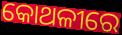
କୋଥଳୀରେ